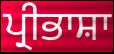
ਪ੍ਰੀਭਾਸ਼ਾ